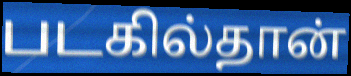
படகில்தான்